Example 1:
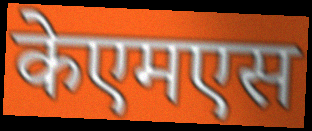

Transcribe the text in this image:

केएमएस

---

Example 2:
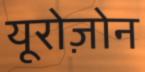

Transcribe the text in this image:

यूरोज़ोन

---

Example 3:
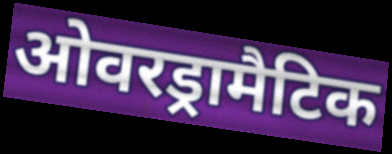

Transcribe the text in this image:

ओवरड्रामैटिक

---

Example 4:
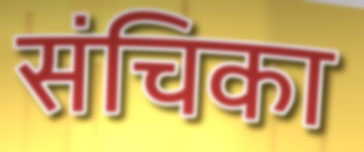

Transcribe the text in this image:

संचिका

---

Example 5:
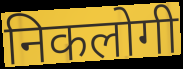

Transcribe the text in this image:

निकलोगी